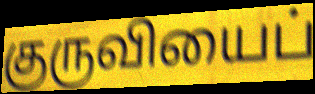
குருவியைப்